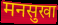
मनसुखा